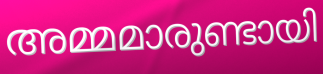
അമ്മമാരുണ്ടായി